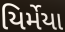
યિર્મેયા